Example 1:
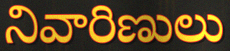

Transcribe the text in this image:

నివారిణులు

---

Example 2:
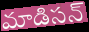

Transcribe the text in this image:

మాడిసన్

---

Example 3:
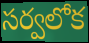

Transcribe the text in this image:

సర్వలోక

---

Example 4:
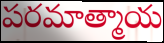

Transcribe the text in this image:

పరమాత్మాయ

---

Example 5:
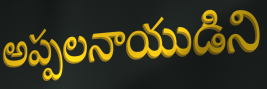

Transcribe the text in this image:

అప్పలనాయుడిని